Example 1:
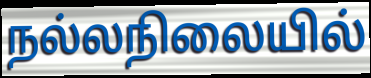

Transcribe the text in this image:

நல்லநிலையில்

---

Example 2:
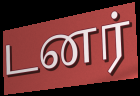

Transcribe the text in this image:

டனர்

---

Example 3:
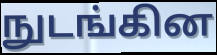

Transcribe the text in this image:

நுடங்கின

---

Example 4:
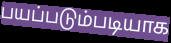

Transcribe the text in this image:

பயப்படும்படியாக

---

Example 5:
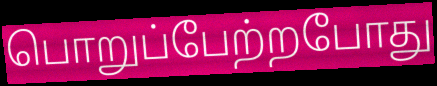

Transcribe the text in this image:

பொறுப்பேற்றபோது